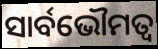
ସାର୍ବଭୌମତ୍ଵ